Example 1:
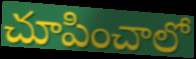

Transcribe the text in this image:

చూపించాలో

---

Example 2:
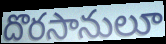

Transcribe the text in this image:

దొరసానులూ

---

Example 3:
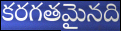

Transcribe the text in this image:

కరగతమైనది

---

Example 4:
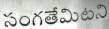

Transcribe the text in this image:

సంగతేమిటని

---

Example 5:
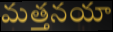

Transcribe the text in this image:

మత్తనయా